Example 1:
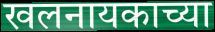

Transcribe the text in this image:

खलनायकाच्या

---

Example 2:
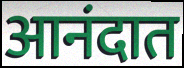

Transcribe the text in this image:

आनंदात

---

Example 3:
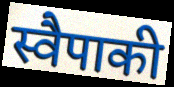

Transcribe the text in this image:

स्वैपाकी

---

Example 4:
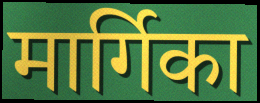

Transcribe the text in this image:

मार्गिका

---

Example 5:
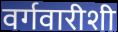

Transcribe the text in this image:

वर्गवारीशी